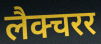
लैक्चरर